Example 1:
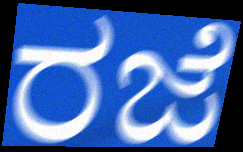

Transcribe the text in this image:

ರಜೆ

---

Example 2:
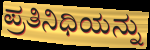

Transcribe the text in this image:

ಪ್ರತಿನಿಧಿಯನ್ನು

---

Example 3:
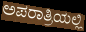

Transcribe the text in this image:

ಅಪರಾತ್ರಿಯಲ್ಲಿ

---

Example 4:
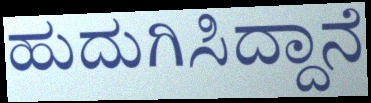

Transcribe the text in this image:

ಹುದುಗಿಸಿದ್ದಾನೆ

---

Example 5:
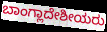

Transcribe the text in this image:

ಬಾಂಗ್ಲಾದೇಶೀಯರು